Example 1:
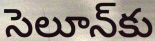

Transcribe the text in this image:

సెలూన్‌కు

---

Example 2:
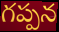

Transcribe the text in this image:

గప్పన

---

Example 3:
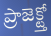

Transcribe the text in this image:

ప్రాజెక్ట్తో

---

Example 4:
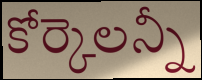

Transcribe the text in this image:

కోర్కెలన్నీ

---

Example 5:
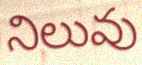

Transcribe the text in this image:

నిలువు